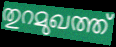
തുറമുഖത്ത്